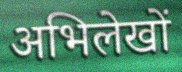
अभिलेखों